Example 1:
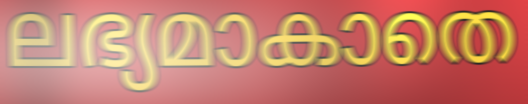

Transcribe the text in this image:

ലഭ്യമാകാതെ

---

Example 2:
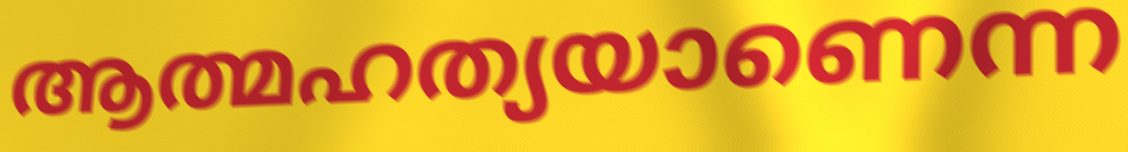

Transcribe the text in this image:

ആത്മഹത്യയാണെന്ന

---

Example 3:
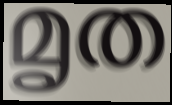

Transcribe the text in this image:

മൃത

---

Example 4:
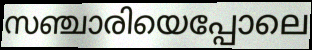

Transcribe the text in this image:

സഞ്ചാരിയെപ്പോലെ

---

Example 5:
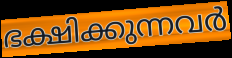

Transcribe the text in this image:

ഭക്ഷിക്കുന്നവർ